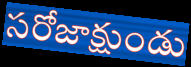
సరోజాక్షుండు